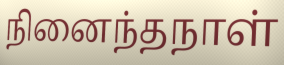
நினைந்தநாள்